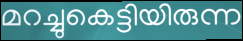
മറച്ചുകെട്ടിയിരുന്ന